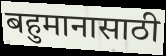
बहुमानासाठी